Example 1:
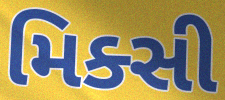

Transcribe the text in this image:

મિક્સી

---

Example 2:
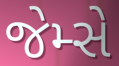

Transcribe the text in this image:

જેમ્સે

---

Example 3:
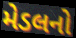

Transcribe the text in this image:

મેડલનો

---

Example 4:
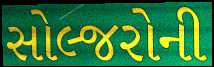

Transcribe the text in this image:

સોલ્જરોની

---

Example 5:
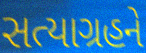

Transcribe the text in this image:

સત્યાગ્રહને